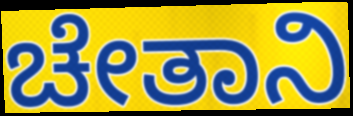
ಚೇತಾನಿ